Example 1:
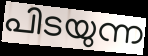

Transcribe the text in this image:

പിടയുന്ന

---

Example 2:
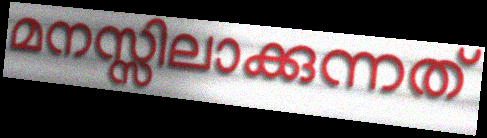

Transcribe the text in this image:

മനസ്സിലാക്കുന്നത്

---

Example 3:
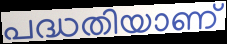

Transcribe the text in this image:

പദ്ധതിയാണ്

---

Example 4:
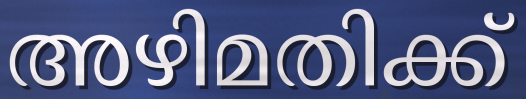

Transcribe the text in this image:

അഴിമതിക്ക്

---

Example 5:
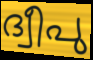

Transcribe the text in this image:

ദ്വീപു